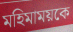
মহিমাময়কে